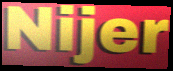
Nijer